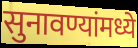
सुनावण्यांमध्ये